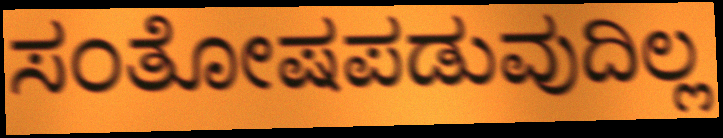
ಸಂತೋಷಪಡುವುದಿಲ್ಲ